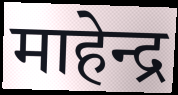
माहेन्द्र